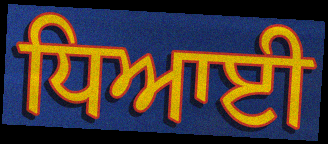
ਧਿਆਈ